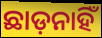
ଛାଡ଼ନାହିଁ